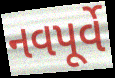
નવપૂર્વે